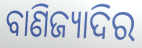
ବାଣିଜ୍ୟାଦିର